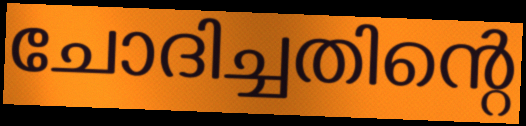
ചോദിച്ചതിന്റെ